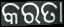
କରତା